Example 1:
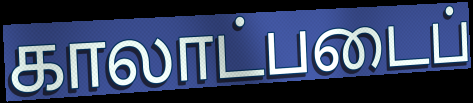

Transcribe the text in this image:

காலாட்படைப்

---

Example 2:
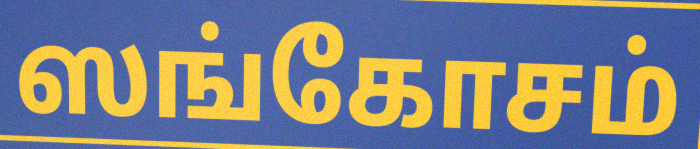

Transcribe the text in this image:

ஸங்கோசம்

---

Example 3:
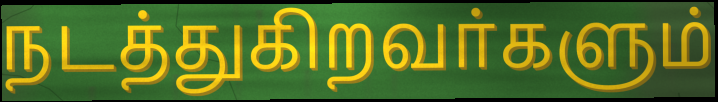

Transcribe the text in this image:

நடத்துகிறவர்களும்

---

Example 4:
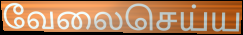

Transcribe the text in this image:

வேலைசெய்ய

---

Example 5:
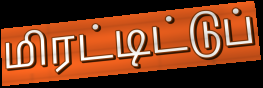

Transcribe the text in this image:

மிரட்டிட்டுப்